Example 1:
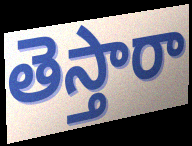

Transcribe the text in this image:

తెస్తారా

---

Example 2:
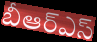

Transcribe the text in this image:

బీఆర్ఎస్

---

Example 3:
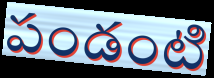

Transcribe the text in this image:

పండంటి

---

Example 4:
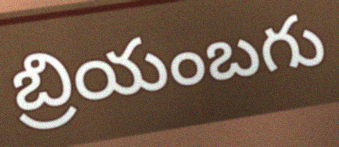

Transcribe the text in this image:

బ్రియంబగు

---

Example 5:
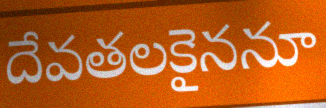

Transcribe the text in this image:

దేవతలకైననూ